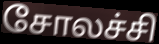
சோலச்சி